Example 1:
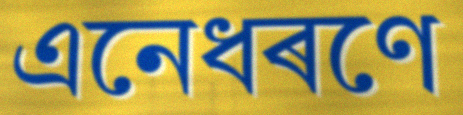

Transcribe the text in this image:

এনেধৰণে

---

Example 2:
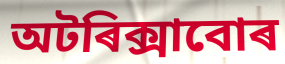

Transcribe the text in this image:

অটৰিক্সাবোৰ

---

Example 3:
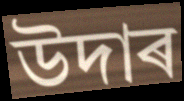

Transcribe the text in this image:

উদাৰ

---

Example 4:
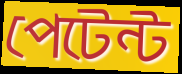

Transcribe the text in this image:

পেটেন্ট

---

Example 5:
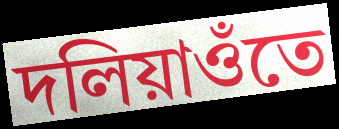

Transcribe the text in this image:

দলিয়াওঁতে